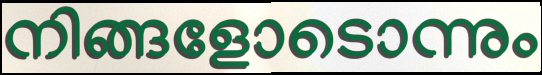
നിങ്ങളോടൊന്നും